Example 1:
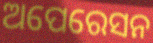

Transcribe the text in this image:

ଅପେରେସନ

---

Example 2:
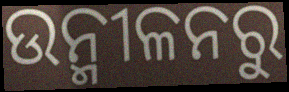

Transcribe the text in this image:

ଉନ୍ମୀଳନରୁ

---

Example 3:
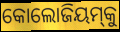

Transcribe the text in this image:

କୋଲୋଜିୟମ୍‍କୁ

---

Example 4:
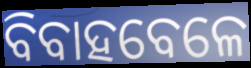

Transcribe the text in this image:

ବିବାହବେଳେ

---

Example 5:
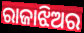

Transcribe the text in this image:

ରାଜାଝିଅର